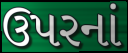
ઉપરનાં